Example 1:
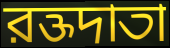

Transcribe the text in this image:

রক্তদাতা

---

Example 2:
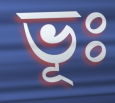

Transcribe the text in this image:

ভূঃ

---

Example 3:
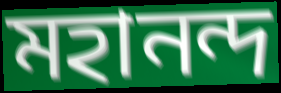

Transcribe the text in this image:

মহানন্দ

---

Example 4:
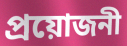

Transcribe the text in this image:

প্রয়োজনী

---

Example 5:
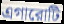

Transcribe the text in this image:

এগারোটি